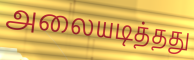
அலையடித்தது